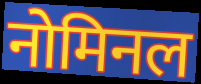
नोमिनल